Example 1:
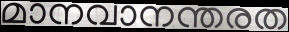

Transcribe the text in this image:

മാനവാനന്തരത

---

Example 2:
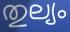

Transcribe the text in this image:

തുല്യം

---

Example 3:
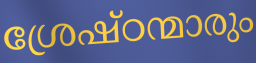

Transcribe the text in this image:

ശ്രേഷ്ഠന്മാരും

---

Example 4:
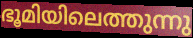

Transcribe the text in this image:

ഭൂമിയിലെത്തുന്നു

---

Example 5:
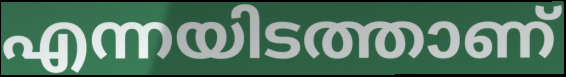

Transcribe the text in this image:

എന്നയിടത്താണ്